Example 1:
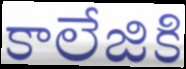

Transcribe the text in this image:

కాలేజికి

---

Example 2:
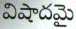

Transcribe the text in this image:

విషాదమై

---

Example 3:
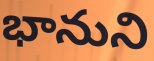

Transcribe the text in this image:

భానుని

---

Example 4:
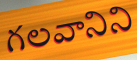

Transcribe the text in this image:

గలవానిని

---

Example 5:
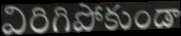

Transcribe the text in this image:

విరిగిపోకుండా